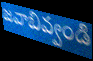
జవాబివ్వండి